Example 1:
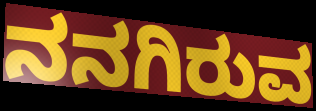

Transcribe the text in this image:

ನನಗಿರುವ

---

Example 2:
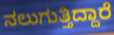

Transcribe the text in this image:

ನಲುಗುತ್ತಿದ್ದಾರೆ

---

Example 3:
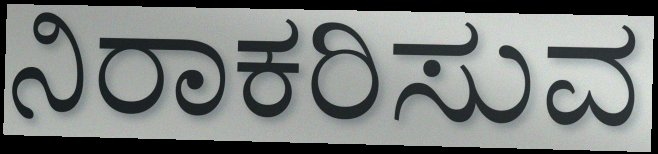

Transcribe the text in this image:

ನಿರಾಕರಿಸುವ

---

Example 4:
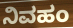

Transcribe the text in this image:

ನಿವಹಂ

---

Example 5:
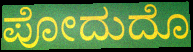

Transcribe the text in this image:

ಪೋದುದೊ